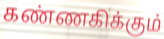
கண்ணகிக்கும்